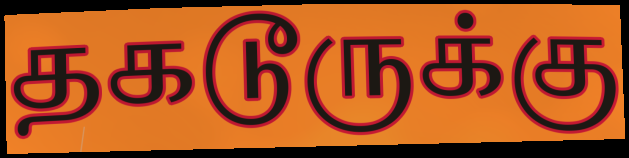
தகடூருக்கு